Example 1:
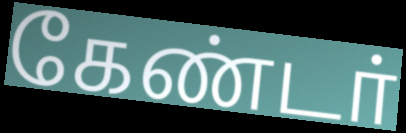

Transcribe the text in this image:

கேண்டர்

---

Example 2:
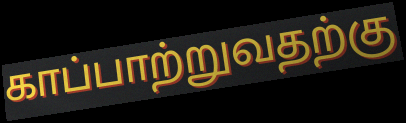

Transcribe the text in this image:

காப்பாற்றுவதற்கு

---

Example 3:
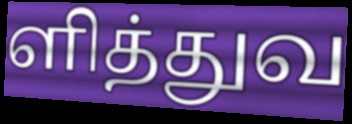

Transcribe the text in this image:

ளித்துவ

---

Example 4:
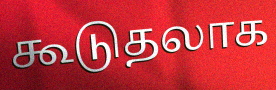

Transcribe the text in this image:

கூடுதலாக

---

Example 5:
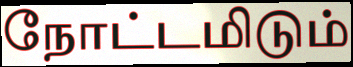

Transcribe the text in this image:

நோட்டமிடும்